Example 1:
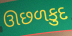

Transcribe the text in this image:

ઊછળકુદ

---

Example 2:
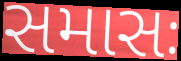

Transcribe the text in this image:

સમાસઃ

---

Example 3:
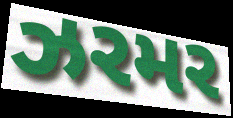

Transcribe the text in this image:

ઝરમર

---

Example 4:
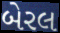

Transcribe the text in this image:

બેરલ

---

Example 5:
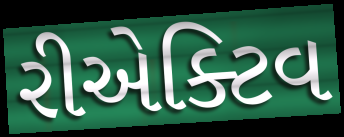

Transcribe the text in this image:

રીએક્ટિવ